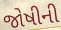
જોષીની